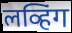
लव्हिंग